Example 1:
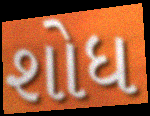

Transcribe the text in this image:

શોધ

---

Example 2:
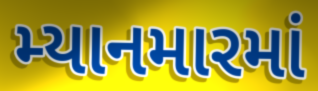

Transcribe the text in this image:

મ્યાનમારમાં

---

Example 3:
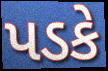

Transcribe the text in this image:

પડકે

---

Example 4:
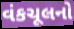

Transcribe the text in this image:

વંકચૂલનો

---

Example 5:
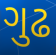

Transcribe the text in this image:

ગુઢ